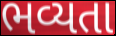
ભવ્યતા